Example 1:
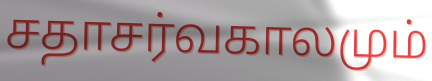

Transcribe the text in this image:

சதாசர்வகாலமும்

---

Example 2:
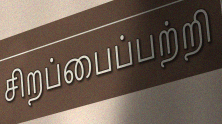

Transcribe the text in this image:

சிறப்பைப்பற்றி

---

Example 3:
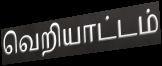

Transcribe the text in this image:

வெறியாட்டம்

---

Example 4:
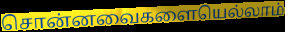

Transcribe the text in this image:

சொன்னவைகளையெல்லாம்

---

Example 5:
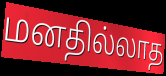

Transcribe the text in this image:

மனதில்லாத